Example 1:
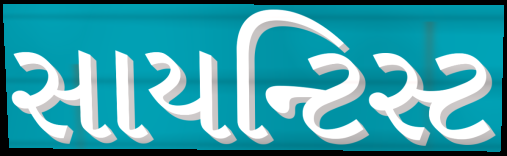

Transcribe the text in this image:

સાયન્ટિસ્ટ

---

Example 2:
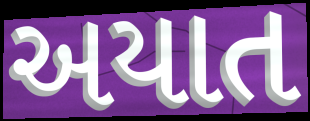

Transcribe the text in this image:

અયાત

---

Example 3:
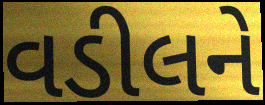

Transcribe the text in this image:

વડીલને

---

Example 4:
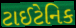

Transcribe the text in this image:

ટાઈટેનિક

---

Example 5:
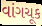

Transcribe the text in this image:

વાંગચૂક